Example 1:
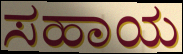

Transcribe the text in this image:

ಸಹಾಯ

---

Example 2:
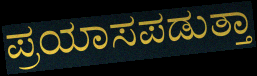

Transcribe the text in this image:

ಪ್ರಯಾಸಪಡುತ್ತಾ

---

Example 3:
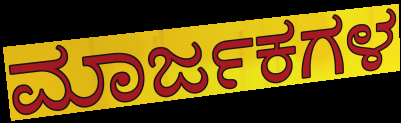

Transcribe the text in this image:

ಮಾರ್ಜಕಗಳ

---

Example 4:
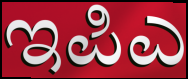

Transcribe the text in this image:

ಇಪಿಎ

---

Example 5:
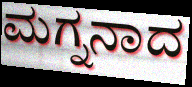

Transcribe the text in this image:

ಮಗ್ನನಾದ